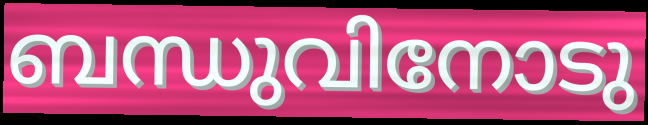
ബന്ധുവിനോടു